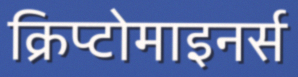
क्रिप्टोमाइनर्स